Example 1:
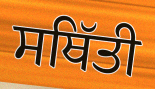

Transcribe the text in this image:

ਸਥਿੱਤੀ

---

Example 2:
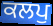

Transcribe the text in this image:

ਕਲਪੁ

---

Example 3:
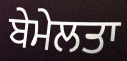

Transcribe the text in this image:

ਬੇਮੇਲਤਾ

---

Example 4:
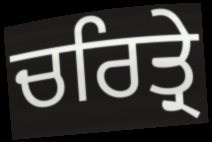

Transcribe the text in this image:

ਚਰਿਤ੍ਰੇ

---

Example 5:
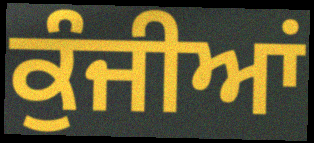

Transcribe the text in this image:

ਕੁੰਜੀਆਂ